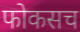
फोकसच